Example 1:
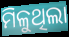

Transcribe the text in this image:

ମିଳୁଥିଲା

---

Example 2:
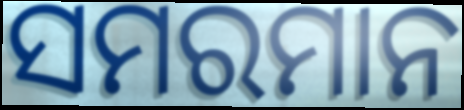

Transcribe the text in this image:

ସମରମାନ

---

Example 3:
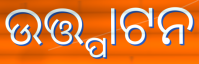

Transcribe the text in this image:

ଉତ୍ତ୍ପାଟନ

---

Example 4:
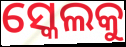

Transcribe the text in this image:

ସ୍କେଲକୁ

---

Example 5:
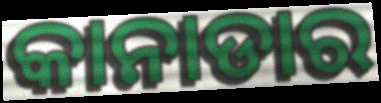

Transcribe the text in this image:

କାନାଡାର